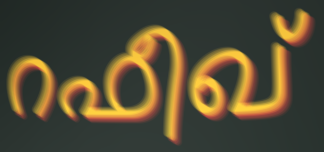
റഫീഖ്